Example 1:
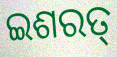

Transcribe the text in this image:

ଇଶରତ୍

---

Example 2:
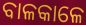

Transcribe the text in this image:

ବାଳକାଳେ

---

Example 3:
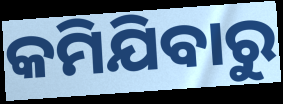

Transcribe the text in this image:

କମିଯିବାରୁ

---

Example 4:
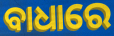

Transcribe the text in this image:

ବାଧାରେ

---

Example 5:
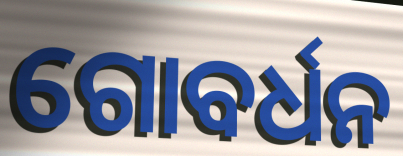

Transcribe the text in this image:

ଗୋବର୍ଧନ